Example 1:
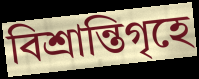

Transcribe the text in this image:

বিশ্রান্তিগৃহে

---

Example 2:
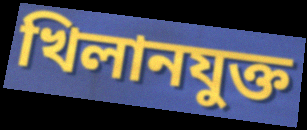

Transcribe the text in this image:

খিলানযুক্ত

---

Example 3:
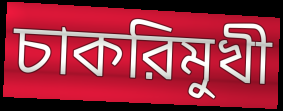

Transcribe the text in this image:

চাকরিমুখী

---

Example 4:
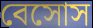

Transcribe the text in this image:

বেসোস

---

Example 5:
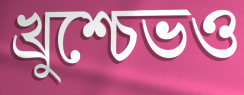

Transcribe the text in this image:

খ্রুশ্চেভও